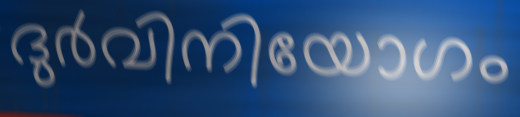
ദുർവിനിയോഗം